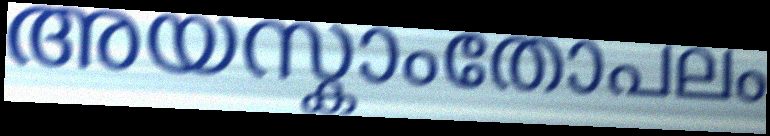
അയസ്കാംതോപലം